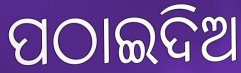
ପଠାଇଦିଅ